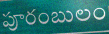
పూరంబులం